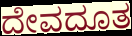
ದೇವದೂತ